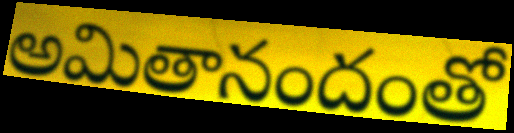
అమితానందంతో